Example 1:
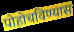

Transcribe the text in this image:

पोहोचविण्यास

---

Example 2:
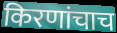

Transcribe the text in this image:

किरणांचाच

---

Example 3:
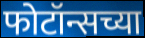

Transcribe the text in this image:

फोटॉन्सच्या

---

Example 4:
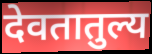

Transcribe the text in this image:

देवतातुल्य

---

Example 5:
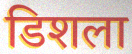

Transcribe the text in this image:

डिशला